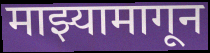
माझ्यामागून